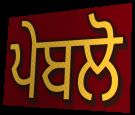
ਪੇਬਲੋ